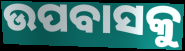
ଉପବାସକୁ